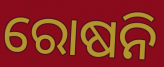
ରୋଷନି